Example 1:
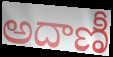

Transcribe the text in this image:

అదాణీ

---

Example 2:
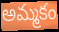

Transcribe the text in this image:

అమ్మకం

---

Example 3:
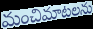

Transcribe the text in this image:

మంచిమాటలను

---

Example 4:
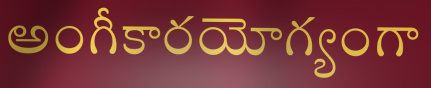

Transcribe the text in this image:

అంగీకారయోగ్యంగా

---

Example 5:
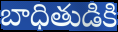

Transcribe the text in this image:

బాధితుడికి